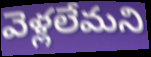
వెళ్లలేమని